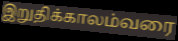
இறுதிக்காலம்வரை